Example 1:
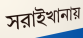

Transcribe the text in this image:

সরাইখানায়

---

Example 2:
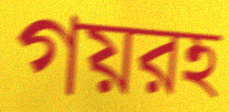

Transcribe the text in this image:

গয়রহ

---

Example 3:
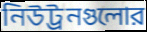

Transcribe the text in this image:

নিউট্রনগুলোর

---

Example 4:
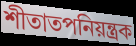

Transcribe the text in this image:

শীতাতপনিয়ন্ত্রক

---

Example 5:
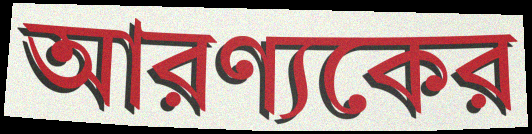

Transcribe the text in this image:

আরণ্যকের